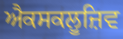
ਐਕਸਕਲੂਜ਼ਿਵ